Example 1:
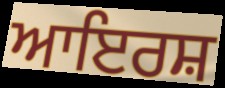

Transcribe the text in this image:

ਆਇਰਸ਼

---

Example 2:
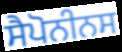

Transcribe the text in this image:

ਸੈਪੋਨੀਨਸ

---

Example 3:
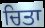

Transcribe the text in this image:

ਚਿਤਾ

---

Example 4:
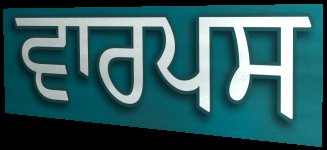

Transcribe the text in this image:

ਵਾਰਪਸ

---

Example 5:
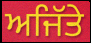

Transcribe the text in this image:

ਅਜਿੱਤੇ